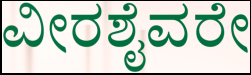
ವೀರಶೈವರೇ